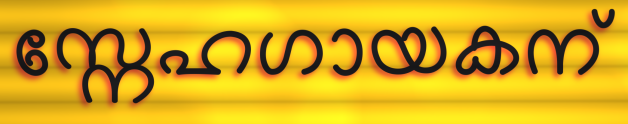
സ്നേഹഗായകന്